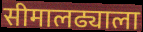
सीमालढ्याला